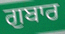
ਗੁਬਾਰ